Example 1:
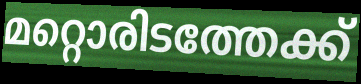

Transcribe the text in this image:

മറ്റൊരിടത്തേക്ക്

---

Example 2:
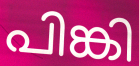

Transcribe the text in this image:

പിങ്കി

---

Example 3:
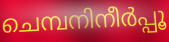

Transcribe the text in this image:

ചെമ്പനിനീർപ്പൂ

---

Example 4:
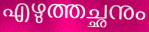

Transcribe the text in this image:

എഴുത്തച്ഛനും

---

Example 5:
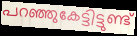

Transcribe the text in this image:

പറഞ്ഞുകേട്ടിട്ടുണ്ട്